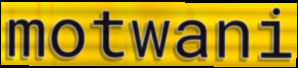
motwani